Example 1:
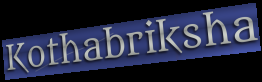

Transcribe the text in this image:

Kothabriksha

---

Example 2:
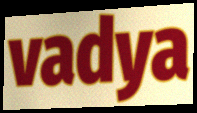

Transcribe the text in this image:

vadya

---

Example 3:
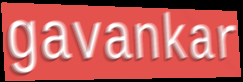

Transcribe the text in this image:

gavankar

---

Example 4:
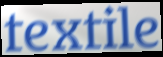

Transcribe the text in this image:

textile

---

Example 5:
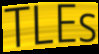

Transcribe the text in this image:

TLEs